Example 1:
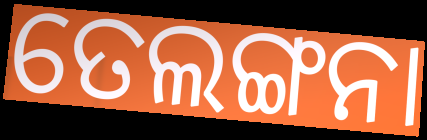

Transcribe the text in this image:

ତେଲଙ୍ଗନା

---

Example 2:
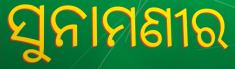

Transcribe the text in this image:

ସୁନାମଣୀର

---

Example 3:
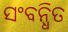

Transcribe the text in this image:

ସଂବନ୍ଧିତ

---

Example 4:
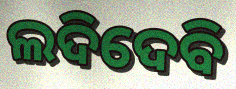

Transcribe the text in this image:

ଲଦିଦେବି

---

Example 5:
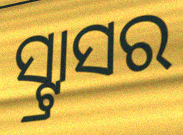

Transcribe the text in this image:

ସ୍ଟ୍ରାସର